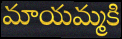
మాయమ్మకి